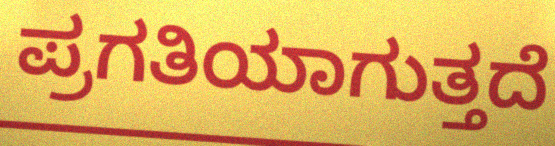
ಪ್ರಗತಿಯಾಗುತ್ತದೆ